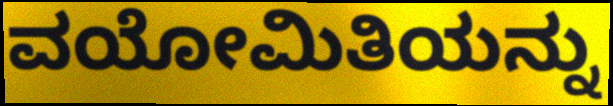
ವಯೋಮಿತಿಯನ್ನು